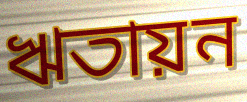
ঋতায়ন